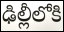
ఢిల్లీలోకి